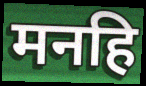
मनहि